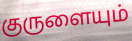
குருளையும்